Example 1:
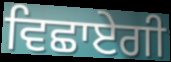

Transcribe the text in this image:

ਵਿਛਾਏਗੀ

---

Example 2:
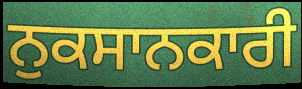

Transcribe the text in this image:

ਨੁਕਸਾਨਕਾਰੀ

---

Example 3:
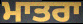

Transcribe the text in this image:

ਮਾਤਰਾ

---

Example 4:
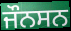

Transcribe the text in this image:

ਜੌਨਸਨ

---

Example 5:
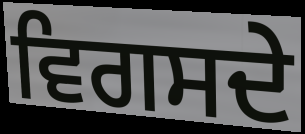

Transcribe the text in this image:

ਵਿਗਸਦੇ